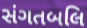
સંગતબલિ